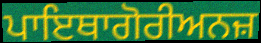
ਪਾਇਥਾਗੋਰੀਅਨਜ਼